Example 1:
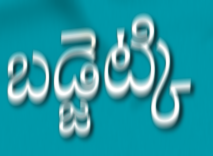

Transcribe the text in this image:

బడ్జెట్కి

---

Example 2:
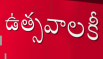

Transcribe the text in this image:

ఉత్సవాలకీ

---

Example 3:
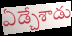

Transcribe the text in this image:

ఏడ్చేశాడు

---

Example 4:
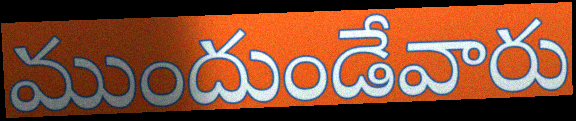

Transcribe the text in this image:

ముందుండేవారు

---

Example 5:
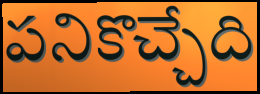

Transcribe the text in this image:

పనికొచ్చేది